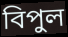
বিপুল